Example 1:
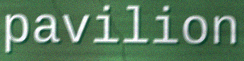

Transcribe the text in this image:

pavilion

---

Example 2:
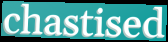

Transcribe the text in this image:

chastised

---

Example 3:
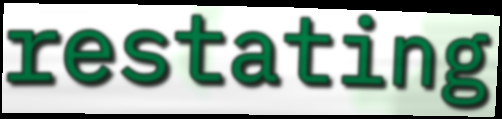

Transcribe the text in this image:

restating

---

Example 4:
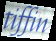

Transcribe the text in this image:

tiffin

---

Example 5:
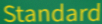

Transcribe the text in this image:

Standard